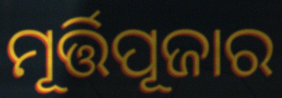
ମୂର୍ତ୍ତିପୂଜାର